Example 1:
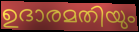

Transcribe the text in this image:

ഉദാരമതിയും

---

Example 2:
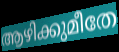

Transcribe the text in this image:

ആഴിക്കുമീതേ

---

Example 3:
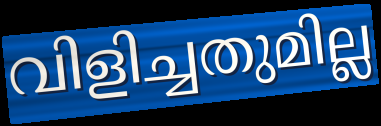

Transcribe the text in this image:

വിളിച്ചതുമില്ല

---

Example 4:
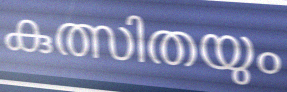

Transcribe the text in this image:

കുത്സിതയും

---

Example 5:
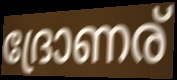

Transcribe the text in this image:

ദ്രോണര്